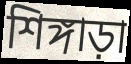
শিঙ্গাড়া